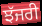
ਝੱਜਰੀ